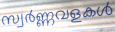
സ്വർണ്ണവളകൾ